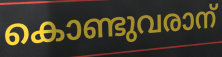
കൊണ്ടുവരാന്